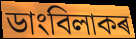
ডাংবিলাকৰ